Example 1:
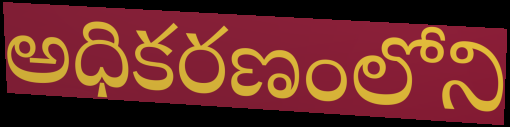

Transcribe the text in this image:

అధికరణంలోని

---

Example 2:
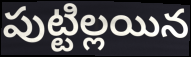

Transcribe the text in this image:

పుట్టిల్లయిన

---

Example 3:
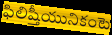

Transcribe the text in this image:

ఫిలిష్తీయునికంటె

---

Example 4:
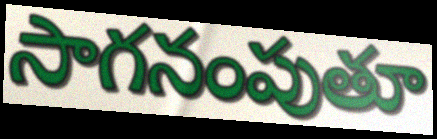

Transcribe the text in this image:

సాగనంపుతూ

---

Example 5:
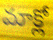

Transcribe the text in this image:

మాక్లో